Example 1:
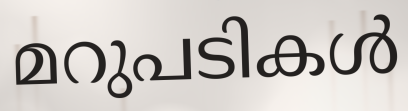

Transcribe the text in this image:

മറുപടികൾ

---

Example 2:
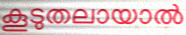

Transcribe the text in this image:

കൂടുതലായാൽ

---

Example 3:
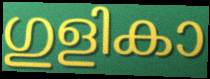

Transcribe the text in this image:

ഗുളികാ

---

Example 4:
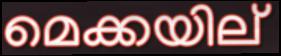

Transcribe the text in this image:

മെക്കയില്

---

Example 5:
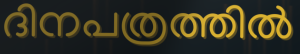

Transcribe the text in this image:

ദിനപത്രത്തിൽ